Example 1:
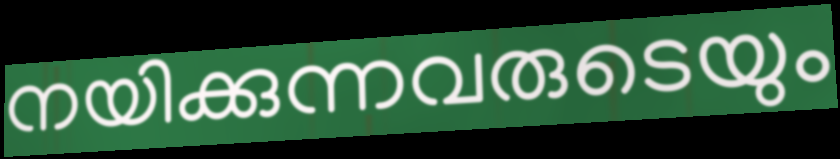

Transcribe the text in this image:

നയിക്കുന്നവരുടെയും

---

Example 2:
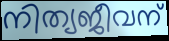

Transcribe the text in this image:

നിത്യജീവന്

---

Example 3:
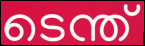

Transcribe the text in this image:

ടെന്ത്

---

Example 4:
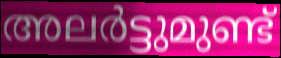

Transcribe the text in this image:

അലർട്ടുമുണ്ട്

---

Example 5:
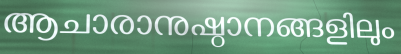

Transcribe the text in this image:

ആചാരാനുഷ്ഠാനങ്ങളിലും